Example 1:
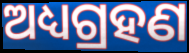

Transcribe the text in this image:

ଅଧ୍ୟଗ୍ରହଣ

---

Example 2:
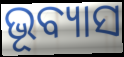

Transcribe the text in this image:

ଭୂବ୍ୟାସ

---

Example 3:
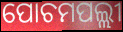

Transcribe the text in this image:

ପୋଚମପଲ୍ଲୀ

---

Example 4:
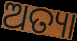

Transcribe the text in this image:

ଅତ୍ୟା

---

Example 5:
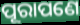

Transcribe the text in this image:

ପୂରାପଣେ